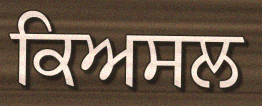
ਕਿਅਸਲ